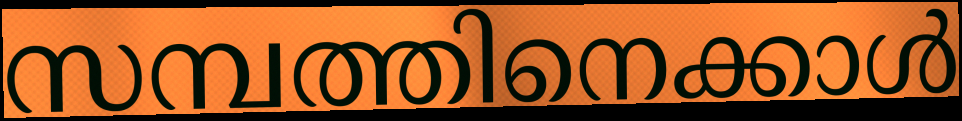
സമ്പത്തിനെക്കാൾ